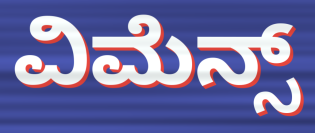
ವಿಮೆನ್ಸ್